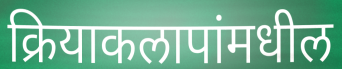
क्रियाकलापांमधील